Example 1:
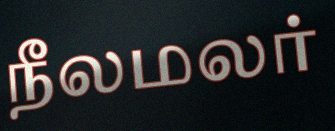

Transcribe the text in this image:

நீலமலர்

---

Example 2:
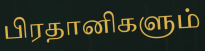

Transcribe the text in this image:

பிரதானிகளும்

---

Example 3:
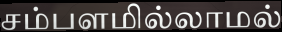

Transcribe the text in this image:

சம்பளமில்லாமல்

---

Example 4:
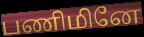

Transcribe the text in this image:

பணிமினே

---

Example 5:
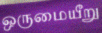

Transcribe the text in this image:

ஒருமையீறு